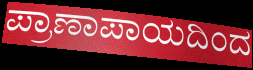
ಪ್ರಾಣಾಪಾಯದಿಂದ